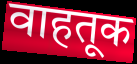
वाहतूक